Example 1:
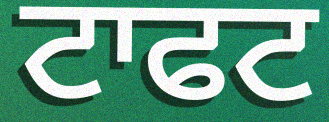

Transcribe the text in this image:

ਟਾਫਟ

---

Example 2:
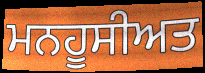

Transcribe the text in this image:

ਮਨਹੂਸੀਅਤ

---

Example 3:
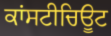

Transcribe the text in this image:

ਕਾਂਸਟੀਚਿਊਟ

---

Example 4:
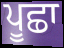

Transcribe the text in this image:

ਪੂਛਾ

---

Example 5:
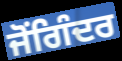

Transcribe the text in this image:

ਜੋਂਗਿੰਦਰ